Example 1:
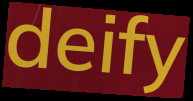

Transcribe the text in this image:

deify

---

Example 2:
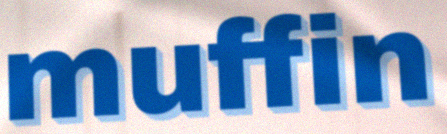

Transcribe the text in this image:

muffin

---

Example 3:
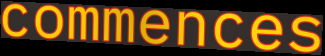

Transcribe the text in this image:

commences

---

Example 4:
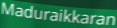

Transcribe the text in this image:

Maduraikkaran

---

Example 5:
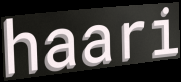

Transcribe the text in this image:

haari